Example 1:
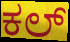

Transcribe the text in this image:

ಕಲ್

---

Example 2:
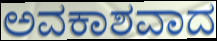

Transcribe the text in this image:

ಅವಕಾಶವಾದ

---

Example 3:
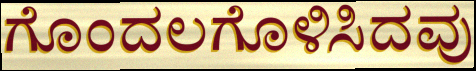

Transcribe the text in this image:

ಗೊಂದಲಗೊಳಿಸಿದವು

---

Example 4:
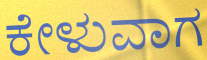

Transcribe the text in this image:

ಕೇಳುವಾಗ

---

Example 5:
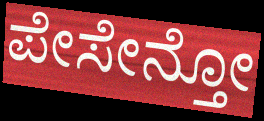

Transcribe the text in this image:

ಪೇಸೇನ್ತೋ